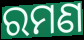
ରମଣ